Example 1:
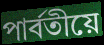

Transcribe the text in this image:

পাৰ্বতীয়ে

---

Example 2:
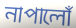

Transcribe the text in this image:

নাপালোঁ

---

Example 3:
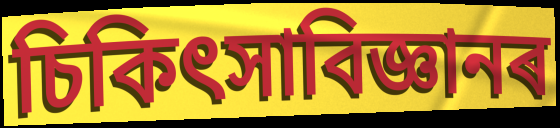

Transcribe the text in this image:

চিকিৎসাবিজ্ঞানৰ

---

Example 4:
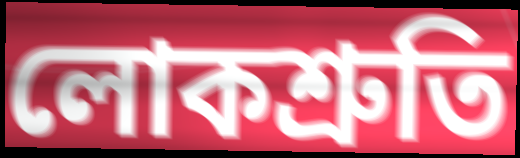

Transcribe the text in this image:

লোকশ্ৰুতি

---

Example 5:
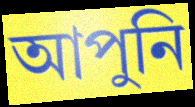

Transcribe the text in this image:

আপুনি